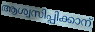
ആശ്വസിപ്പിക്കാന്